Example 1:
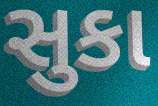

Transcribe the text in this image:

સુકા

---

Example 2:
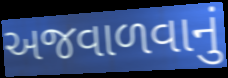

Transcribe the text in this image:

અજવાળવાનું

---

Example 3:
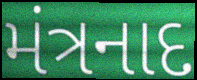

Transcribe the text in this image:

મંત્રનાદ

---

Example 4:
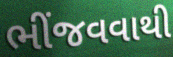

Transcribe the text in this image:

ભીંજવવાથી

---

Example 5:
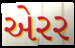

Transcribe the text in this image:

એરર